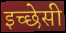
इच्छेसी